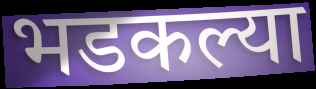
भडकल्या